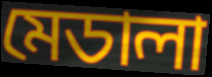
মেডালা